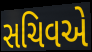
સચિવએ